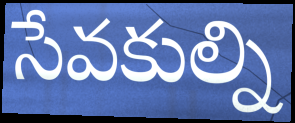
సేవకుల్ని